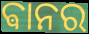
ଵାନର